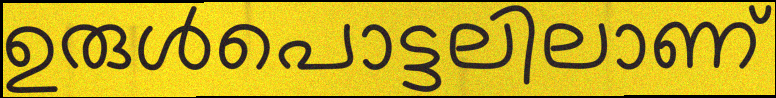
ഉരുൾപൊട്ടലിലാണ്